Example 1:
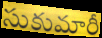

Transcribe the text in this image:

సుకుమారీ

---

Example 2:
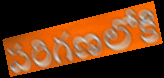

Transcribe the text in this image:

పరిగణలోకి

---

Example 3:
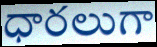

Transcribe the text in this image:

ధారలుగా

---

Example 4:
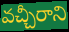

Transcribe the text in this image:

వచ్చీరాని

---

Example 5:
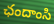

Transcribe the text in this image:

ఛందాంసి